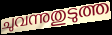
ചുവന്നുതുടുത്ത